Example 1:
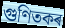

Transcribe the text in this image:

গুণিতকৰ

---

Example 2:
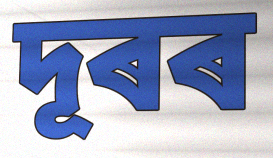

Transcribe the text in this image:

দূৰৰ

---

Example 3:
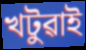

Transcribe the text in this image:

খটুৱাই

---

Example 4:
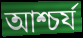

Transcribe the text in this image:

আশ্চৰ্য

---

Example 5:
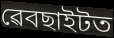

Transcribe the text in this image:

ৱেবছাইটত